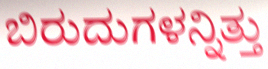
ಬಿರುದುಗಳನ್ನಿತ್ತು